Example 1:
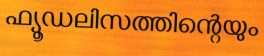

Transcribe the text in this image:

ഫ്യൂഡലിസത്തിന്റെയും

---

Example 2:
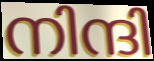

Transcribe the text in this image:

നിന്ദി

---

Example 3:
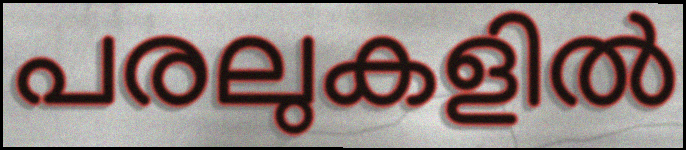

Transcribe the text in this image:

പരലുകളിൽ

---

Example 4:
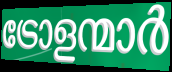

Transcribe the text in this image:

ട്രോളന്മാർ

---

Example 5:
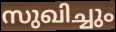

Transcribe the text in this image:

സുഖിച്ചും